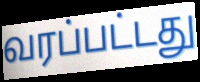
வரப்பட்டது